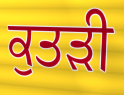
ਕੁਤੜੀ